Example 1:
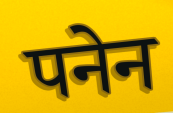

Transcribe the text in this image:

पनेन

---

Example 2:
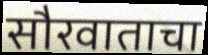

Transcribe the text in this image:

सौरवाताचा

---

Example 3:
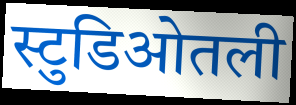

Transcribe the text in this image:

स्टुडिओतली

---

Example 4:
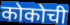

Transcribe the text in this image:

कोकोची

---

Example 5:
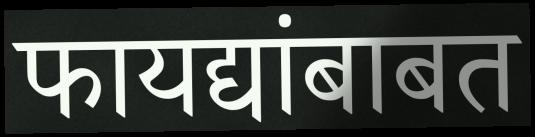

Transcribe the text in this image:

फायद्यांबाबत